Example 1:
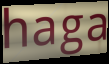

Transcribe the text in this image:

haga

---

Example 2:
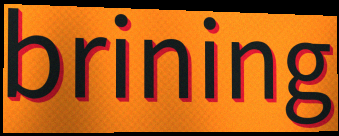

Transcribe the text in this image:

brining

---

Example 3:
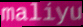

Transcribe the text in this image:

maliyu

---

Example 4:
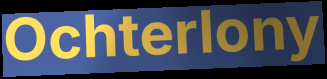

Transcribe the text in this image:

Ochterlony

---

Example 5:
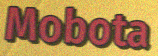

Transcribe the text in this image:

Mobota